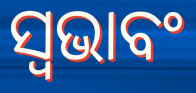
ସ୍ଵଭାବଂ